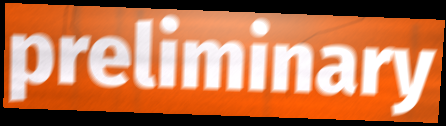
preliminary